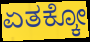
ಏತಕ್ಕೋ